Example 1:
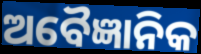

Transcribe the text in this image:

ଅବୈଜ୍ଞାନିକ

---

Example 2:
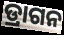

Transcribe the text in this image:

ଡ୍ରାଗନ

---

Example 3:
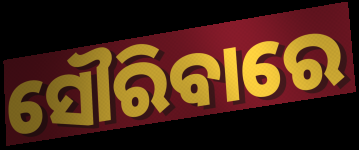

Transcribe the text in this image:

ସୌରିବାରେ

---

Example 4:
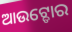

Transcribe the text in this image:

ଆଉଟ୍ଡୋର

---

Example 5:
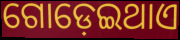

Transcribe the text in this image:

ଗୋଡ଼େଇଥାଏ